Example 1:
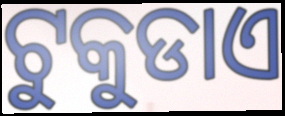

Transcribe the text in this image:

ଟୁକୁଡାଏ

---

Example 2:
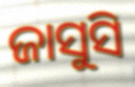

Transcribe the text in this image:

ଜାସୁସି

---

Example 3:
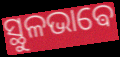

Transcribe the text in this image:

ସ୍ଥୁଳଭାଵେ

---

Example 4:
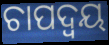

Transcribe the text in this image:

ଚାପଦ୍ଵୟ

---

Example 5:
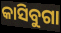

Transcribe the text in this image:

କାସିବୁଗା